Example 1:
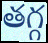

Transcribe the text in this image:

తగ్గ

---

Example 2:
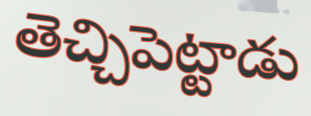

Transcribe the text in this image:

తెచ్చిపెట్టాడు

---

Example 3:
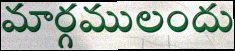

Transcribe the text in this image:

మార్గములందు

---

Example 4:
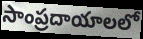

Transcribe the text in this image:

సాంప్రదాయాలలో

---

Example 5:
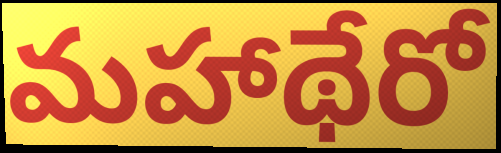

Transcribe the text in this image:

మహాథేరో